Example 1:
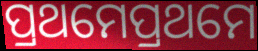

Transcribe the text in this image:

ପ୍ରଥମେପ୍ରଥମେ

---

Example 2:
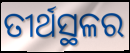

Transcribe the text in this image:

ତୀର୍ଥସ୍ଥଳର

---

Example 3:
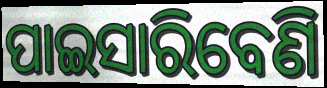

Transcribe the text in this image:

ପାଇସାରିବେଣି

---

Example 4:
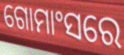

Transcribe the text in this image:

ଗୋମାଂସରେ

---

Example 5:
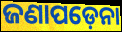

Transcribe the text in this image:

ଜଣାପଡ଼େନା